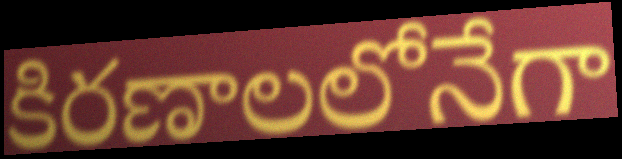
కిరణాలలోనేగా